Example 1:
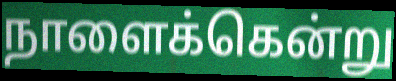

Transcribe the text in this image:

நாளைக்கென்று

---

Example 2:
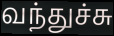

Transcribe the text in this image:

வந்துச்சு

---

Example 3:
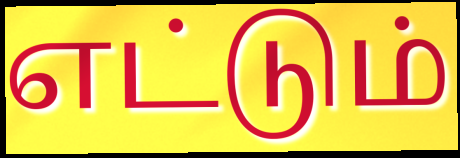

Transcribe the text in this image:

எட்டும்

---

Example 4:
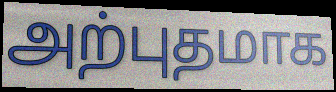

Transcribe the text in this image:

அற்புதமாக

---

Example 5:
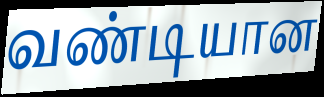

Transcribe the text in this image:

வண்டியான